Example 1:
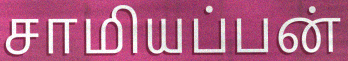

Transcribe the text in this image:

சாமியப்பன்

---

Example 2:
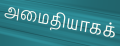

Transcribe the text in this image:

அமைதியாகக்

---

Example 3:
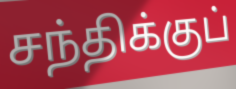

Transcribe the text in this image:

சந்திக்குப்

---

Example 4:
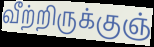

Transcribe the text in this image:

வீற்றிருக்குஞ்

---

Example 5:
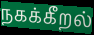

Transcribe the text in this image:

நகக்கீறல்